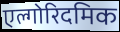
एल्गोरिदमिक